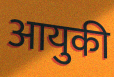
आयुकी